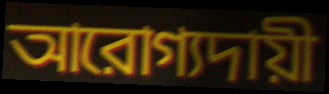
আরোগ্যদায়ী